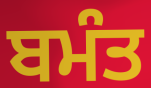
ਬਮੰਤ